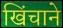
खिंचाने